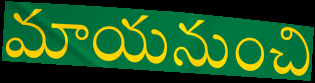
మాయనుంచి